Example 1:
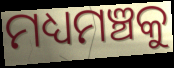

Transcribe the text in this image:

ମଧ୍ୟମଞ୍ଚକୁ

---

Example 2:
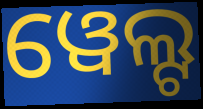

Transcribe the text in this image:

ୱେଲ୍ଟ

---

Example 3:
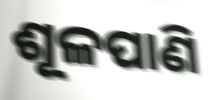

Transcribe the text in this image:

ଶୂଳପାଣି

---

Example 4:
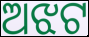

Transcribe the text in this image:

ଅଝଟ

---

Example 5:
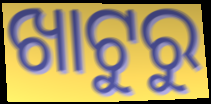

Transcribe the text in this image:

ଖାଟୁରୁ